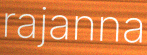
rajanna